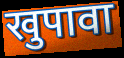
खुपावा